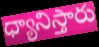
ధ్యానిస్తారు